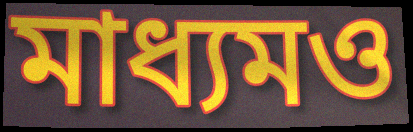
মাধ্যমও